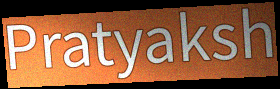
Pratyaksh